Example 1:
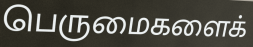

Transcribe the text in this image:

பெருமைகளைக்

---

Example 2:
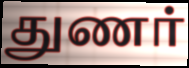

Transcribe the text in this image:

துணர்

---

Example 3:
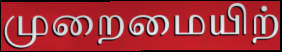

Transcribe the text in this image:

முறைமையிற்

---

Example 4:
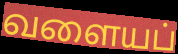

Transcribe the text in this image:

வளையப்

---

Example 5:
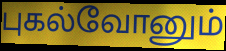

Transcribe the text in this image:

புகல்வோனும்